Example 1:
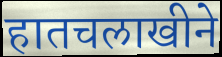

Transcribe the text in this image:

हातचलाखीने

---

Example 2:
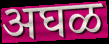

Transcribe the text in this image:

अघळ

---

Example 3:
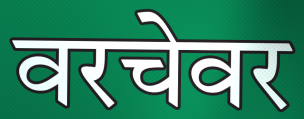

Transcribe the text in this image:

वरचेवर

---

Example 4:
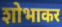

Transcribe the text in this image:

शोभाकर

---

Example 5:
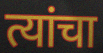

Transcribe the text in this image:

त्यांचा